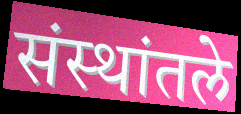
संस्थांतले